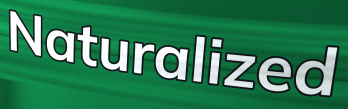
Naturalized